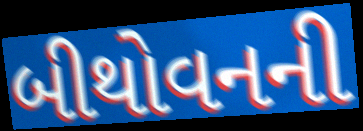
બીથોવનની